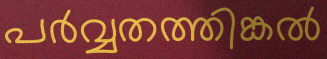
പർവ്വതത്തിങ്കൽ